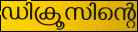
ഡിക്രൂസിന്റെ